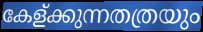
കേള്ക്കുന്നതത്രയും